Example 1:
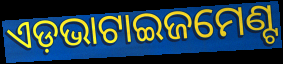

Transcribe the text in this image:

ଏଡ଼ଭାଟାଇଜମେଣ୍ଟ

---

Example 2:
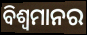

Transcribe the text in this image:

ବିଶ୍ୱମାନର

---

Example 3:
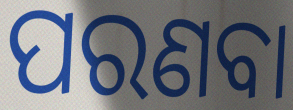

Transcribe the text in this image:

ପରଣବା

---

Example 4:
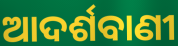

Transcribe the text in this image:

ଆଦର୍ଶବାଣୀ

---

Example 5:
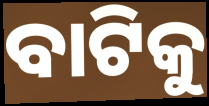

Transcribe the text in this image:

ବାଟିକୁ